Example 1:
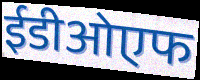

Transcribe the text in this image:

ईडीओएफ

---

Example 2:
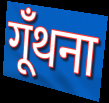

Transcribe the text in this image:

गूँथना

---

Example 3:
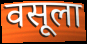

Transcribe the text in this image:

वसूला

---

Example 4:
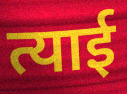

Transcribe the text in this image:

त्याई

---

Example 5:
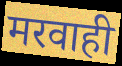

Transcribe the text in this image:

मरवाही